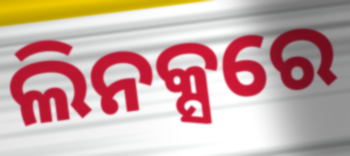
ଲିନକ୍ସରେ